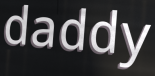
daddy